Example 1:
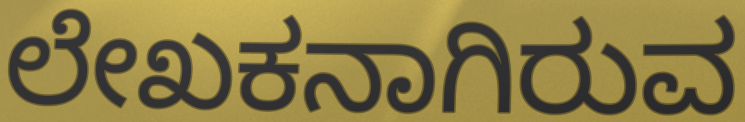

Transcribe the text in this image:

ಲೇಖಕನಾಗಿರುವ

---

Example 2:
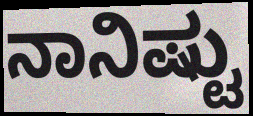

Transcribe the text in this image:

ನಾನಿಷ್ಟು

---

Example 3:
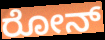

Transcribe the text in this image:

ರೋನ್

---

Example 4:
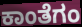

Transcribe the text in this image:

ಕಾಂತೆಗಂ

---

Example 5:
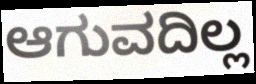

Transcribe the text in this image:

ಆಗುವದಿಲ್ಲ